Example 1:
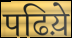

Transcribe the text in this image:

पढिय़े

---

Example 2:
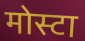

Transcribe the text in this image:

मोस्टा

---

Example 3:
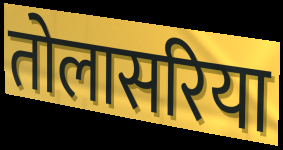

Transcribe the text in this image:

तोलासरिया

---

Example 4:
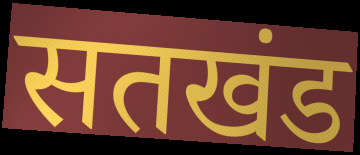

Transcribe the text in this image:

सतखंड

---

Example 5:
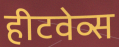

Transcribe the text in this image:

हीटवेव्स